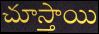
చూస్తాయి